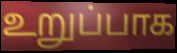
உறுப்பாக